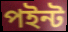
পইন্ট